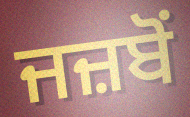
ਜਜ਼ਬੋਂ